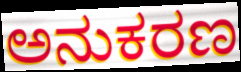
ಅನುಕರಣ